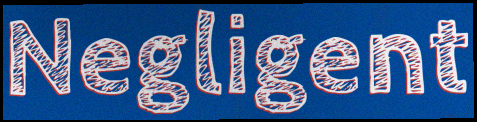
Negligent